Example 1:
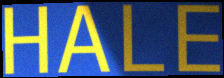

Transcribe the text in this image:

HALE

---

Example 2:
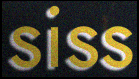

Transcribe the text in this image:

siss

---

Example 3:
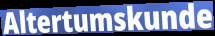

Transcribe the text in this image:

Altertumskunde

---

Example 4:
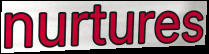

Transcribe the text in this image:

nurtures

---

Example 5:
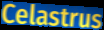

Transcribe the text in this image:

Celastrus